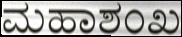
ಮಹಾಶಂಖ